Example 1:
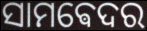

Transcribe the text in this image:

ସାମଵେଦର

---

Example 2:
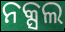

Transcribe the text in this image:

ନକ୍ସଲ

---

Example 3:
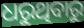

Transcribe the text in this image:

ଧରୁଥିବାରୁ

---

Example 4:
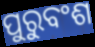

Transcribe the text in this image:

ପୁରୁବଂଶ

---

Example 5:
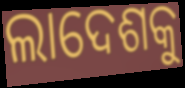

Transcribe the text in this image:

ଲାଦେଶକୁ